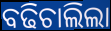
ବଢିଚାଲିଲା